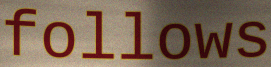
follows